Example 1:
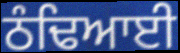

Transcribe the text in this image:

ਠੰਢਿਆਈ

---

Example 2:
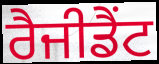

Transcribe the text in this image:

ਰੈਜੀਡੈਂਟ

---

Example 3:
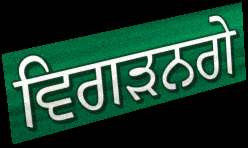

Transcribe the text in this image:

ਵਿਗੜਨਗੇ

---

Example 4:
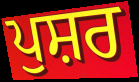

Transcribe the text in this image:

ਪੁਸ਼ਰ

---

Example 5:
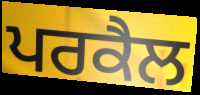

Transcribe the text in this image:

ਪਰਕੈਲ